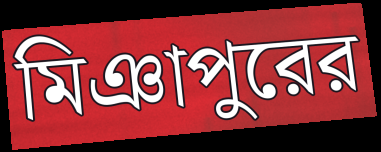
মিঞাপুরের